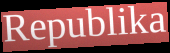
Republika